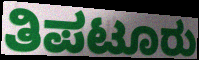
ತಿಪಟೂರು